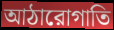
আঠারোগাতি